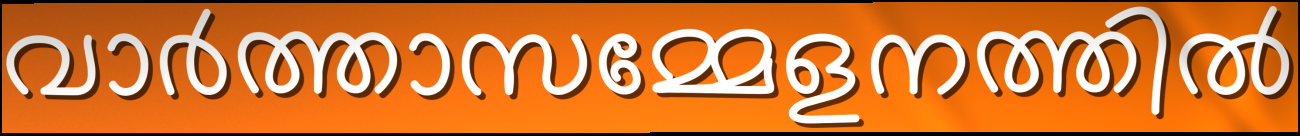
വാർത്താസമ്മേളനത്തിൽ